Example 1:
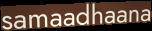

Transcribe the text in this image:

samaadhaana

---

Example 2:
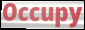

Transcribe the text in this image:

Occupy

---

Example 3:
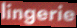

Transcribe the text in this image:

lingerie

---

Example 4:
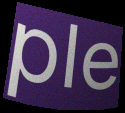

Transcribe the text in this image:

ple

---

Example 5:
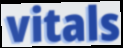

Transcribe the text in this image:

vitals